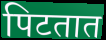
पिटतात